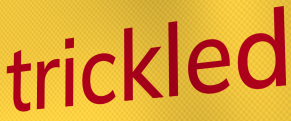
trickled